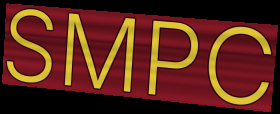
SMPC